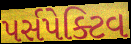
પર્સપેક્ટિવ